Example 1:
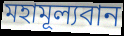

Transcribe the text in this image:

মহামূল্যবান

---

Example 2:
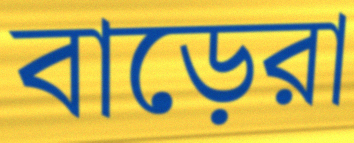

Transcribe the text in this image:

বাড়েরা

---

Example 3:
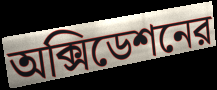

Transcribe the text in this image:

অক্সিডেশনের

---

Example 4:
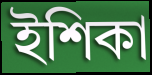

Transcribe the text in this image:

ইশিকা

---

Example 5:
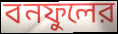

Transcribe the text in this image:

বনফুলের